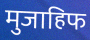
मुजाहिफ